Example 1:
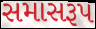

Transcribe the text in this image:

સમાસરૂપ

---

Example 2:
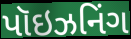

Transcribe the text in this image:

પૉઇઝનિંગ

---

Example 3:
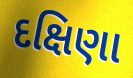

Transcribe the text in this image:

દક્ષિણા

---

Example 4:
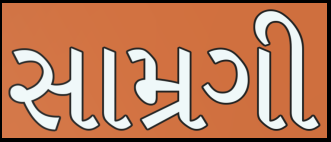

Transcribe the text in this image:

સામ્રગી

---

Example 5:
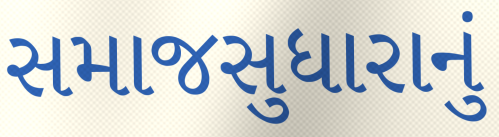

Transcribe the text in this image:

સમાજસુધારાનું